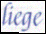
liege